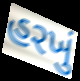
હરખું